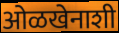
ओळखेनाशी